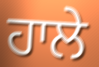
ਹਾਲੇ